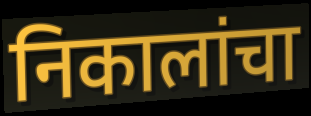
निकालांचा